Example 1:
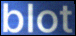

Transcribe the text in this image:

blot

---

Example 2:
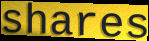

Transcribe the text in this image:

shares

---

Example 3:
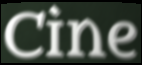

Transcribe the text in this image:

Cine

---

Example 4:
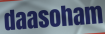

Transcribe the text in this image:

daasoham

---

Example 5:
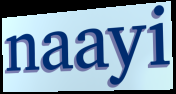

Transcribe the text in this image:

naayi